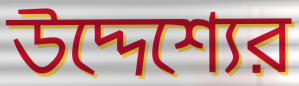
উদ্দেশ্যের